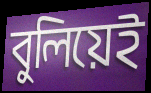
বুলিয়েই